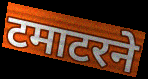
टमाटरने